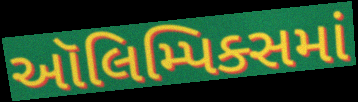
ઑલિમ્પિક્સમાં